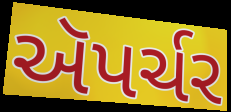
ઍપર્ચર